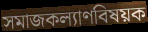
সমাজকল্যাণবিষয়ক